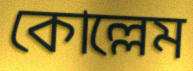
কোল্লেম